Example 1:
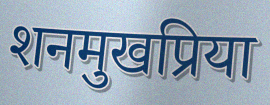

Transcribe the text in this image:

शनमुखप्रिया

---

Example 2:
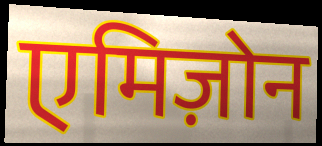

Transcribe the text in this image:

एमिज़ोन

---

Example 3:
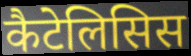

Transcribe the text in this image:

कैटेलिसिस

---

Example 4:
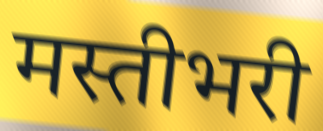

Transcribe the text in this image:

मस्तीभरी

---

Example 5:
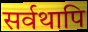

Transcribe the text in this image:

सर्वथापि